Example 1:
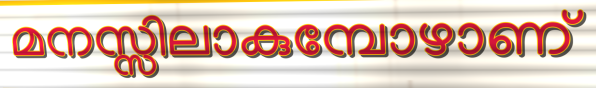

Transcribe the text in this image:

മനസ്സിലാകുമ്പോഴാണ്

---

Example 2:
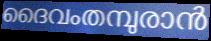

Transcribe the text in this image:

ദൈവംതമ്പുരാൻ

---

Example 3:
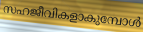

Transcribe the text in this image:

സഹജീവികളാകുമ്പോൾ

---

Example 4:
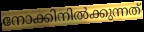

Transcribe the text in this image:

നോക്കിനിൽക്കുന്നത്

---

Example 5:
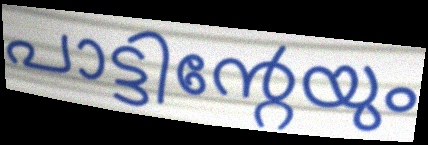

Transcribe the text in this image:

പാട്ടിന്റേയും